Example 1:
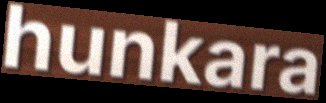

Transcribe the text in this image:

hunkara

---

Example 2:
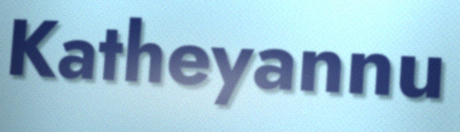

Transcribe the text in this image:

Katheyannu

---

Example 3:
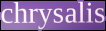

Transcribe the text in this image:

chrysalis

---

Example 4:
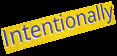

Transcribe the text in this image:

Intentionally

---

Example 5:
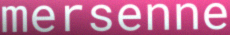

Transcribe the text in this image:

mersenne